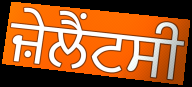
ਜ਼ੇਲੈਂਟਸੀ